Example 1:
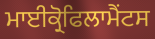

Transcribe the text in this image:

ਮਾਈਕ੍ਰੋਫਿਲਾਮੈਂਟਸ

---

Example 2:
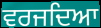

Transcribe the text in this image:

ਵਰਜਦਿਆ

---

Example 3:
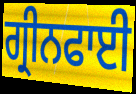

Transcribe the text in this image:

ਗ੍ਰੀਨਫਾਈ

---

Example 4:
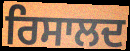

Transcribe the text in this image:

ਰਿਸਾਲਦ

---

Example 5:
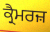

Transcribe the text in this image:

ਕ੍ਰੈਮਰਜ਼